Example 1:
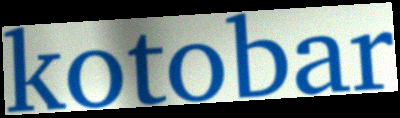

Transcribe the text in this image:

kotobar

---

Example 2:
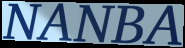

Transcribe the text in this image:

NANBA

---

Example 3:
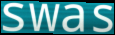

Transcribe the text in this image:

swas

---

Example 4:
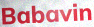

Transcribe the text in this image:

Babavin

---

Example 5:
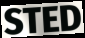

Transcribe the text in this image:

STED